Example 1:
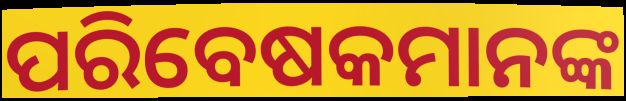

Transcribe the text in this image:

ପରିବେଷକମାନଙ୍କ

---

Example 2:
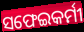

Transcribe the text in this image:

ସଫେଇକର୍ମୀ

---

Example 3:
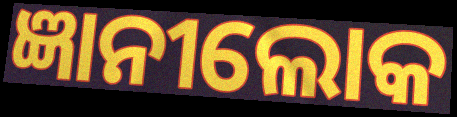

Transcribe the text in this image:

ଜ୍ଞାନୀଲୋକ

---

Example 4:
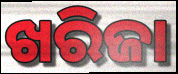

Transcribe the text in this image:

ଖରିଜା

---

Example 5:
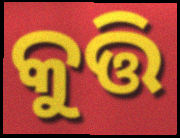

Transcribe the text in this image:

କୁତ୍ତି